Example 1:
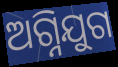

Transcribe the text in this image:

ଅଗ୍ନିଯୁଗ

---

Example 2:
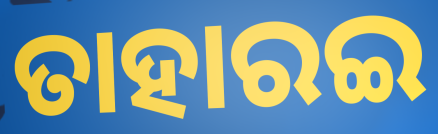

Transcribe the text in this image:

ତାହାରଇ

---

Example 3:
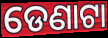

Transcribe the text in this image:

ଡେଣାଟା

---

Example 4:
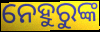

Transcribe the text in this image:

ନେହୁରୁଙ୍କ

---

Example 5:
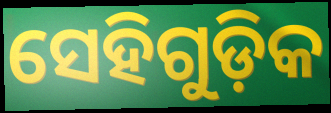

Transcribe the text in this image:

ସେହିଗୁଡ଼ିକ